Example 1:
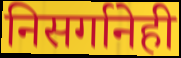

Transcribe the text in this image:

निसर्गानेही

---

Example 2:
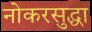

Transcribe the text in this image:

नोकरसुद्धा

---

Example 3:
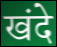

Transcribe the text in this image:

खंदे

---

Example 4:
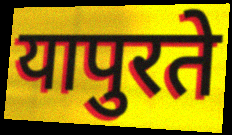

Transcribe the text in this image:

यापुरते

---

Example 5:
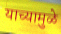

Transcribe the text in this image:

याच्यामुळे